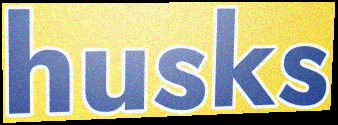
husks